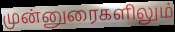
முன்னுரைகளிலும்